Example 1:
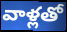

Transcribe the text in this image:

వాళ్లతో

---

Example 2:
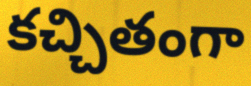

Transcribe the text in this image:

కచ్చితంగా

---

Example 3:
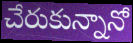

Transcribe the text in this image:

చేరుకున్నానో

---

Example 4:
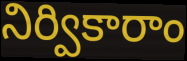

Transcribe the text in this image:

నిర్వికారాం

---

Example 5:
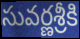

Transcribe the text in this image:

సువర్ణశ్రీకి